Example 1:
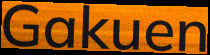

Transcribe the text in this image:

Gakuen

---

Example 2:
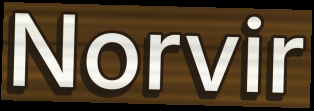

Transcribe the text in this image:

Norvir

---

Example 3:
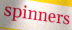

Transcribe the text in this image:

spinners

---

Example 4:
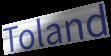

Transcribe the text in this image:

Toland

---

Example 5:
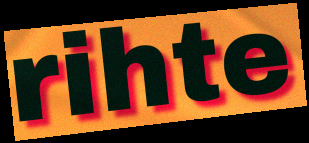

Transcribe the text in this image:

rihte